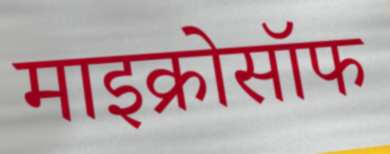
माइक्रोसॉफ